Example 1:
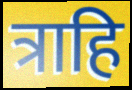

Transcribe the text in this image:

त्राहि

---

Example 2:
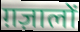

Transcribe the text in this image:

ग़ज़ालों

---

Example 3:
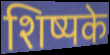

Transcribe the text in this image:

शिष्यके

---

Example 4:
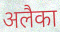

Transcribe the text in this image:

अलैका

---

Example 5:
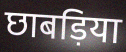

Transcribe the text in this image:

छाबड़िया